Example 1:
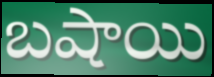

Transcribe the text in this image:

బషాయి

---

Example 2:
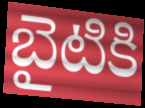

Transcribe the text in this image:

బైటికి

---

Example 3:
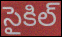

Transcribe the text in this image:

సైకిల్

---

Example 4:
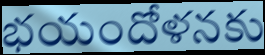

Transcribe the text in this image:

భయందోళనకు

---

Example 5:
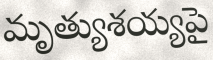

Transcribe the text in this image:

మృత్యుశయ్యపై